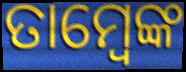
ତାମ୍ବେଙ୍କ